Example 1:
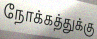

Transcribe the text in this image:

நோக்கத்துக்கு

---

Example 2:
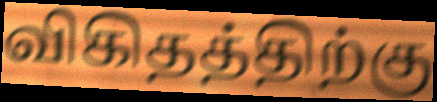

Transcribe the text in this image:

விகிதத்திற்கு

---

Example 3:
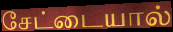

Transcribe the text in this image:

சேட்டையால்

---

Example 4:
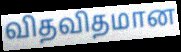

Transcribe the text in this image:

விதவிதமான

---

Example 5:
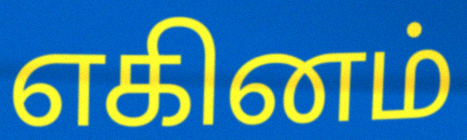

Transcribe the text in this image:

எகினம்